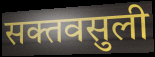
सक्तवसुली